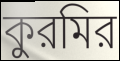
কুরমির